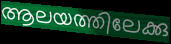
ആലയത്തിലേക്കു